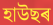
হাউছৰ